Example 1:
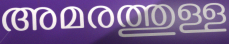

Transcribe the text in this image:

അമരത്തുള്ള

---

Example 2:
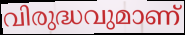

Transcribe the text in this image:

വിരുദ്ധവുമാണ്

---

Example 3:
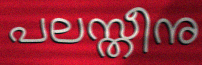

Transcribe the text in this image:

പലസ്തീനു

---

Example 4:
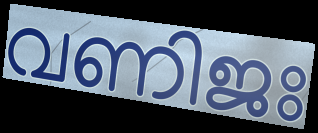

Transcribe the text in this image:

വണിജഃ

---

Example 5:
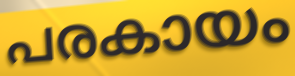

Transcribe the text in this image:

പരകായം